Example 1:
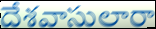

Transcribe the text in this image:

దేశవాసులారా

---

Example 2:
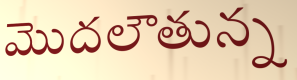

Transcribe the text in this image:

మొదలౌతున్న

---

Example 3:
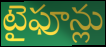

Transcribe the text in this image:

టైఫూన్లు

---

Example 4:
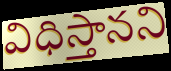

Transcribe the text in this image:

విధిస్తానని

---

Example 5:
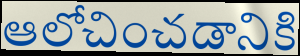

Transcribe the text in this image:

ఆలోచించడానికి